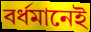
বর্ধমানেই